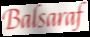
Balsaraf